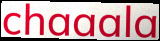
chaaala